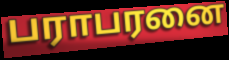
பராபரனை